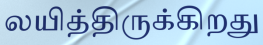
லயித்திருக்கிறது